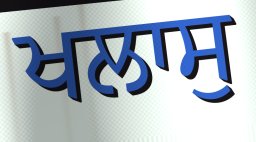
ਖਲਾਸੁ